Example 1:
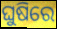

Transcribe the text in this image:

ଘୁଷିରେ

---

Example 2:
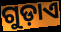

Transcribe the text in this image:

ଗୁଡ଼ାଏ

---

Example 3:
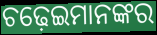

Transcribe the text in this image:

ଚଢ଼େଇମାନଙ୍କର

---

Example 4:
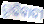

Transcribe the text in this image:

ରୂଢିବାଦୀ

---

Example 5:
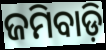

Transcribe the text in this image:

ଜମିବାଡ଼ି